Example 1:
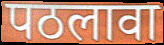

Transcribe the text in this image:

पठलावा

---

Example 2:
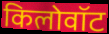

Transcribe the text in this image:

किलोवॉट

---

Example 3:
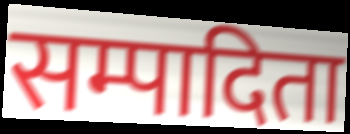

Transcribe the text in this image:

सम्पादिता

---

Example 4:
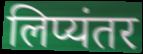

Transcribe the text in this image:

लिप्यंतर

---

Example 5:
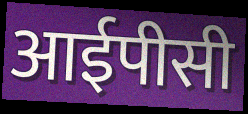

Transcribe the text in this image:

आईपीसी